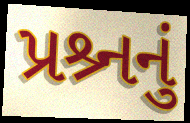
પ્રશ્ર્નનું